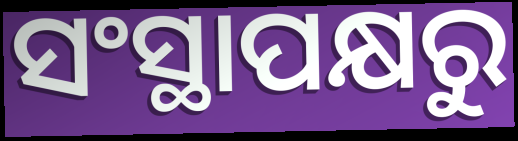
ସଂସ୍ଥାପକ୍ଷରୁ